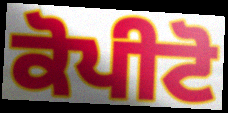
ਕੋਪੀਟੋ